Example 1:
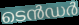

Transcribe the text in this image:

ടെൻഡർ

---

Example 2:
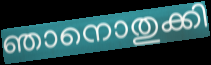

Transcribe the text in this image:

ഞാനൊതുക്കി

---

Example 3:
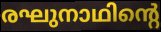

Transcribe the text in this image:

രഘുനാഥിന്റെ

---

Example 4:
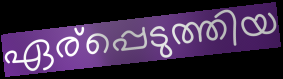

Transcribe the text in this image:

ഏര്പ്പെടുത്തിയ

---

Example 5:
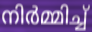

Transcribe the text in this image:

നിർമ്മിച്ച്